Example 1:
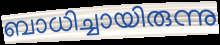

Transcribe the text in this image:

ബാധിച്ചായിരുന്നു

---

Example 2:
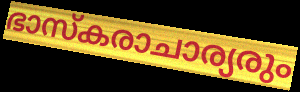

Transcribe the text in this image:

ഭാസ്കരാചാര്യരും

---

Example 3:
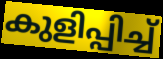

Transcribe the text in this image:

കുളിപ്പിച്ച്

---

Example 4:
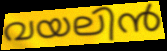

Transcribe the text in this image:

വയലിൻ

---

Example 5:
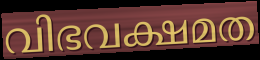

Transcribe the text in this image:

വിഭവക്ഷമത